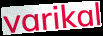
varikal